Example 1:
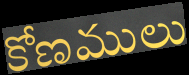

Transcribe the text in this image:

కోణములు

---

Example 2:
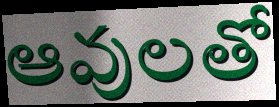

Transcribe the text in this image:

ఆవులతో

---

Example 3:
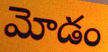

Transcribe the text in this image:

మోడం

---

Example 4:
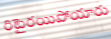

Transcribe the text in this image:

రిటైరయిపోయారు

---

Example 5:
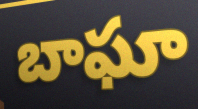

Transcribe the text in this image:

బాఘా